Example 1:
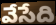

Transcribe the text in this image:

వేసేది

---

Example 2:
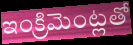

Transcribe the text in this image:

ఇంక్రిమెంట్లతో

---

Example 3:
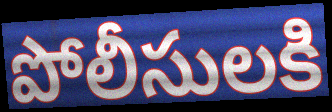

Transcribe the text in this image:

పోలీసులకి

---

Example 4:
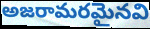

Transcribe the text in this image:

అజరామరమైనవి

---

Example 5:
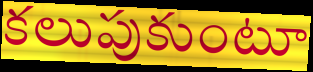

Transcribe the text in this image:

కలుపుకుంటూ